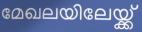
മേഖലയിലേയ്ക്ക്